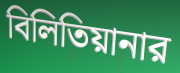
বিলিতিয়ানার